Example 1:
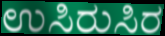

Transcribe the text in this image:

ಉಸಿರುಸಿರ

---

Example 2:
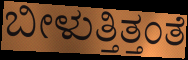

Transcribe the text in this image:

ಬೀಳುತ್ತಿತ್ತಂತೆ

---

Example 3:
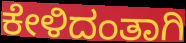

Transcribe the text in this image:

ಕೇಳಿದಂತಾಗಿ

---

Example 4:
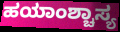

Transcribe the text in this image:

ಹಯಾಂಶ್ಚಾಸ್ಯ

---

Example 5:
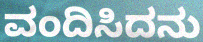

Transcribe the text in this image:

ವಂದಿಸಿದನು